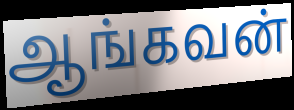
ஆங்கவன்